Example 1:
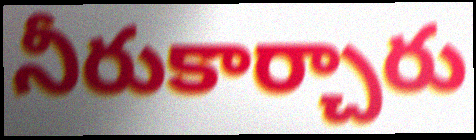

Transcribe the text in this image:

నీరుకార్చారు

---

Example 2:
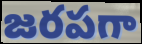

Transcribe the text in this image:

జరపగా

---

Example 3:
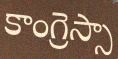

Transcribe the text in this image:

కాంగ్రెస్సా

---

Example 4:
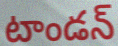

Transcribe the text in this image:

టాండన్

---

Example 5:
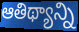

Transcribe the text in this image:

ఆతిథ్యాన్ని